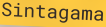
Sintagama